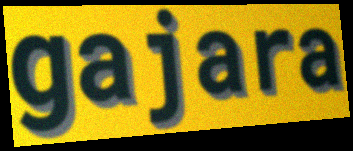
gajara